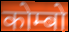
कोम्बो